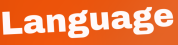
Language